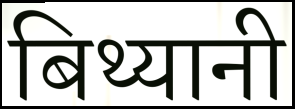
बिथ्यानी